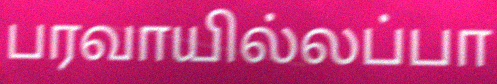
பரவாயில்லப்பா